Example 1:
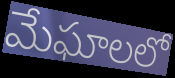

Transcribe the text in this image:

మేఘాలలో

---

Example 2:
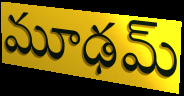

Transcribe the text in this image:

మూఢమ్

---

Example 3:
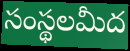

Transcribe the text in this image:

సంస్థలమీద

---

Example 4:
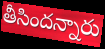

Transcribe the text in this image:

తీసిందన్నారు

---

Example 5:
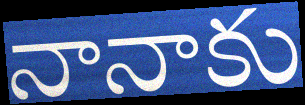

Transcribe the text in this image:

నానాకు